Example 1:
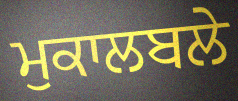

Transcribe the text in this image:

ਮੁਕਾਲਬਲੇ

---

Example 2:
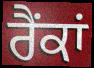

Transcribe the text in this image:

ਰੈਂਕਾਂ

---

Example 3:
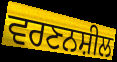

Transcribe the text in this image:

ਵਰਣਨਸ਼ੀਲ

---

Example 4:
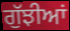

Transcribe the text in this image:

ਗੁੱਝੀਆਂ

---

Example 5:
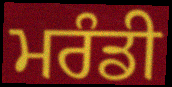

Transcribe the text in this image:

ਮਰੰਡੀ